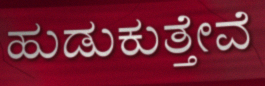
ಹುಡುಕುತ್ತೇವೆ